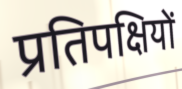
प्रतिपक्षियों